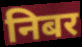
निबर